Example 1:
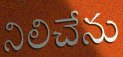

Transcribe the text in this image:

నిలిచేను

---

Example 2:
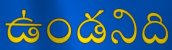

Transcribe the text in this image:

ఉండనిది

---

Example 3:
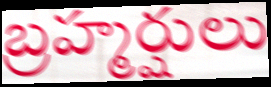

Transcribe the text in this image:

బ్రహ్మర్షులు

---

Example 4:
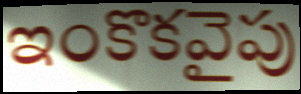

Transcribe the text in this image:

ఇంకొకవైపు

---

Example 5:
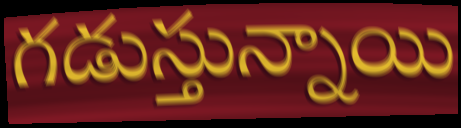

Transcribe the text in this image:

గడుస్తున్నాయి